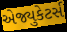
એજ્યુકેટર્સ